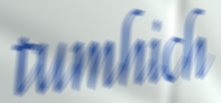
tumhich